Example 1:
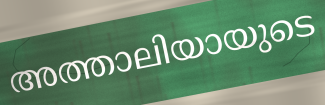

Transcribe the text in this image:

അത്താലിയായുടെ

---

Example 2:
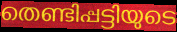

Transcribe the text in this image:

തെണ്ടിപ്പട്ടിയുടെ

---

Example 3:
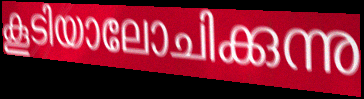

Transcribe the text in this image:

കൂടിയാലോചിക്കുന്നു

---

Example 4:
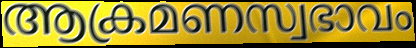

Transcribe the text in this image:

ആക്രമണസ്വഭാവം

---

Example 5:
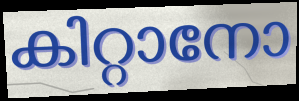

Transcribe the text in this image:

കിറ്റാനോ